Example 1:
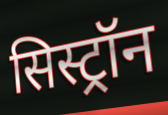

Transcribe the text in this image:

सिस्ट्रॉन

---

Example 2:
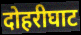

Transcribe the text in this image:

दोहरीघाट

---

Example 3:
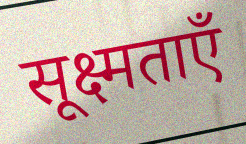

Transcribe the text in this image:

सूक्ष्मताएँ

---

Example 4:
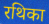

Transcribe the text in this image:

रथिका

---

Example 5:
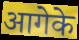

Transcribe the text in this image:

आगेके